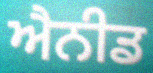
ਐਨੀਡ